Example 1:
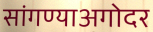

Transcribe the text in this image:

सांगण्याअगोदर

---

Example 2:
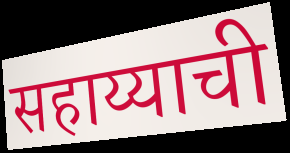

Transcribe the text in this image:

सहाय्याची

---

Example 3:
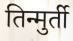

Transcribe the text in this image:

तिन्मुर्ती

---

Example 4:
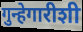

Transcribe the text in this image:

गुन्हेगारीशी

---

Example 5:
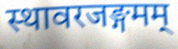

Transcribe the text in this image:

स्थावरजङ्गमम्